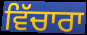
ਵਿੱਚਾਰਾ